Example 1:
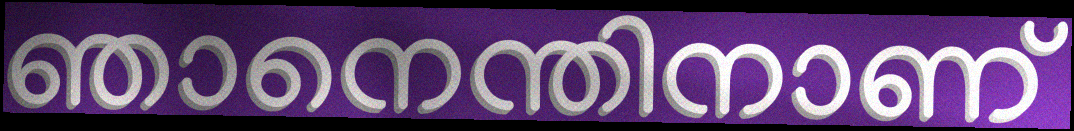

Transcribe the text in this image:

ഞാനെന്തിനാണ്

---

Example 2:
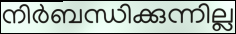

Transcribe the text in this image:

നിർബന്ധിക്കുന്നില്ല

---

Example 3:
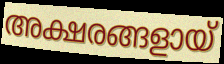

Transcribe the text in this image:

അക്ഷരങ്ങളായ്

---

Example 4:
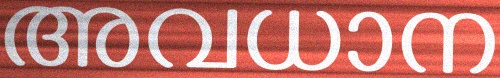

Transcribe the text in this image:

അവധാന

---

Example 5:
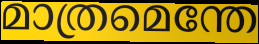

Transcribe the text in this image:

മാത്രമെന്തേ